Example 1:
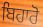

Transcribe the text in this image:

ਬਿਹਾਰੋ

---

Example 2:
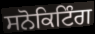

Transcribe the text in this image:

ਸਨੋਕਿਟਿੰਗ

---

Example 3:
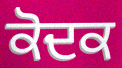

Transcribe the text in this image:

ਕੋਦਕ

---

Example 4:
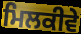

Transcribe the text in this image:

ਮਿਲਕੀਵੇ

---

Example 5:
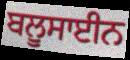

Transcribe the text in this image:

ਬਲੂਸਾਈਨ